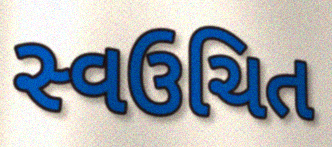
સ્વઉચિત